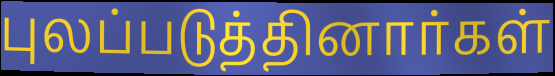
புலப்படுத்தினார்கள்